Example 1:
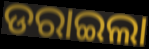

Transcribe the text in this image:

ଡରାଇଲା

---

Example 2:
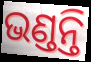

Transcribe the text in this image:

ଭଣ୍ଡନ୍ତି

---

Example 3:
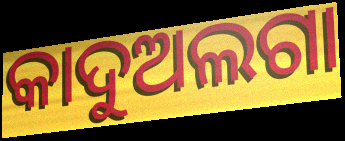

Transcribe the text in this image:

କାଦୁଅଲଗା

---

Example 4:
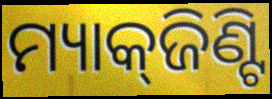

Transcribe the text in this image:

ମ୍ୟାକ୍‌ଜିଣ୍ଟି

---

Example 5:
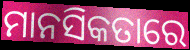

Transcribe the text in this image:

ମାନସିକତାରେ